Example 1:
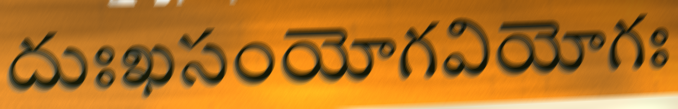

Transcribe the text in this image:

దుఃఖసంయోగవియోగః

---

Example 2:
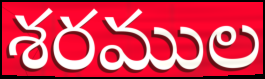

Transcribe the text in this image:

శరముల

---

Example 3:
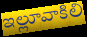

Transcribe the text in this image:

ఇల్లూవాకిలి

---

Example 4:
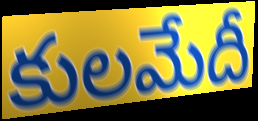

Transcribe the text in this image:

కులమేదీ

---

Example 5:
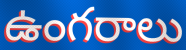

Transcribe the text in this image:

ఉంగరాలు